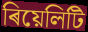
ৰিয়েলিটি